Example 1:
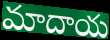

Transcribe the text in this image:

మాదాయ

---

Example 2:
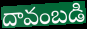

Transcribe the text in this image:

దావంబడి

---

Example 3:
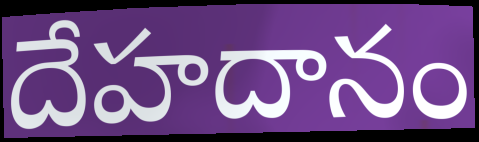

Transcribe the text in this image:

దేహదానం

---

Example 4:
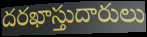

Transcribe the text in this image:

దరఖాస్తుదారులు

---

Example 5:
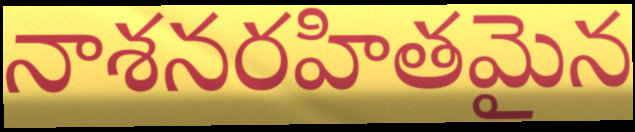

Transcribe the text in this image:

నాశనరహితమైన